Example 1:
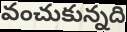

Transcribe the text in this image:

వంచుకున్నది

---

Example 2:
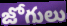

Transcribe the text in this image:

జోగులు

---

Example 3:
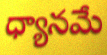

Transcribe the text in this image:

ధ్యానమే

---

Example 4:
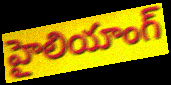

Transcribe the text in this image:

హైలియాంగ్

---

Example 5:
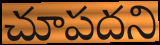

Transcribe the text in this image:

చూపదని